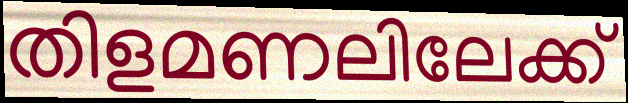
തിളമണലിലേക്ക്